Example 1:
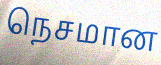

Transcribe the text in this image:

நெசமான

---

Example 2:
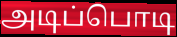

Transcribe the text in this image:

அடிப்பொடி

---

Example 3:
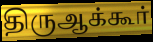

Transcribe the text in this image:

திருஆக்கூர்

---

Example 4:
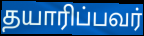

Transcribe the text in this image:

தயாரிப்பவர்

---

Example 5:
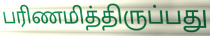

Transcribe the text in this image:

பரிணமித்திருப்பது